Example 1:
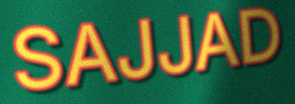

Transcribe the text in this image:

SAJJAD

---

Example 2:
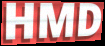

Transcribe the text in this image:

HMD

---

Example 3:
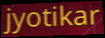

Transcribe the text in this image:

jyotikar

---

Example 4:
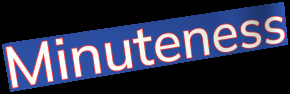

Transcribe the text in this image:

Minuteness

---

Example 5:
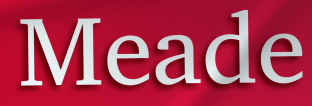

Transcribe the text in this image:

Meade